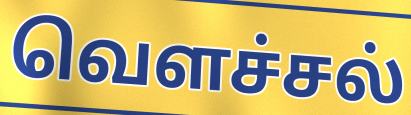
வெளச்சல்